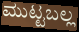
ಮುಟ್ಟಬಲ್ಲ